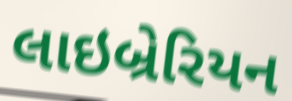
લાઇબ્રેરિયન